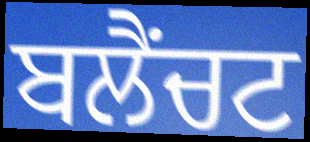
ਬਲੈਂਚਟ